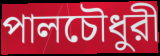
পালচৌধুরী